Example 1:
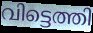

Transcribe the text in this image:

വിട്ടെത്തി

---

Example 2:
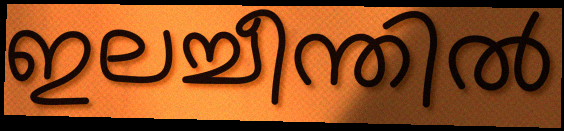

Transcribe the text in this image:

ഇലച്ചീന്തിൽ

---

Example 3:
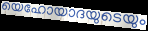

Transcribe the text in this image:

യെഹോയാദയുടെയും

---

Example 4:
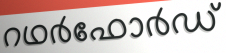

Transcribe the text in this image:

റഥർഫോർഡ്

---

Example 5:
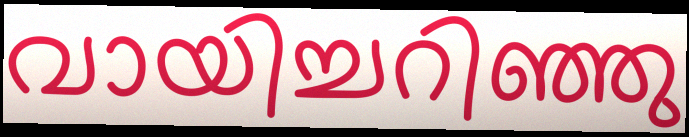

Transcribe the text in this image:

വായിച്ചറിഞ്ഞു